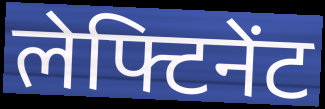
लेफ्टिनेंट